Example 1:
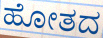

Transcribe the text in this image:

ಹೋತದ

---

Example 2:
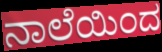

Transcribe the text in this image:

ನಾಲೆಯಿಂದ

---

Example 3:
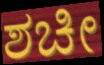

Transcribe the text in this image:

ಶಚೀ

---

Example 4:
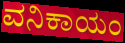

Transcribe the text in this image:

ವನಿಕಾಯಂ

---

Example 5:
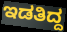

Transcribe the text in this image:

ಇಡತಿದ್ದ